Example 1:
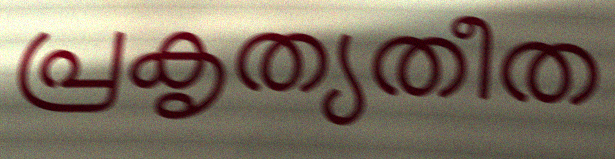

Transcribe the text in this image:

പ്രകൃത്യതീത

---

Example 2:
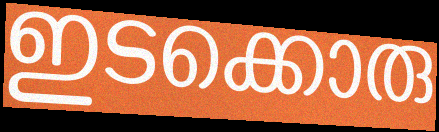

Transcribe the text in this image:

ഇടക്കൊരു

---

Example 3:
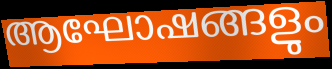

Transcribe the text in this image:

ആഘോഷങ്ങളും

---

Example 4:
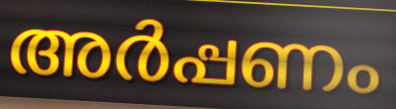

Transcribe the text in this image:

അർപ്പണം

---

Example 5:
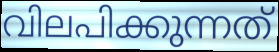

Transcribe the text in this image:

വിലപിക്കുന്നത്